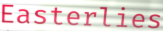
Easterlies